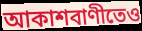
আকাশবাণীতেও